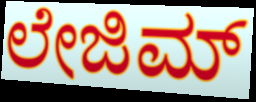
ಲೇಜಿಮ್